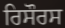
ਰਿਸੌਰਸ